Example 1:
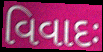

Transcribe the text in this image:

વિવાદઃ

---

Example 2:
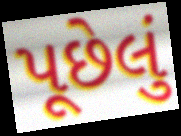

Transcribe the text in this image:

પૂછેલું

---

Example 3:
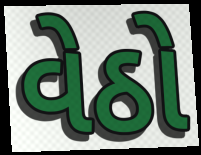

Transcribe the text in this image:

વેઠો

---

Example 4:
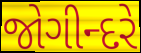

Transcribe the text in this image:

જોગીન્દરે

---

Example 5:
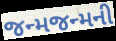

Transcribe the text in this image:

જન્મજન્મની